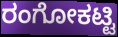
ರಂಗೋಕಟ್ಟಿ